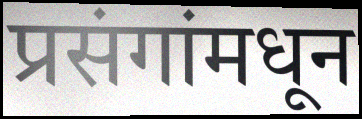
प्रसंगांमधून